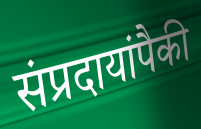
संप्रदायांपैकी